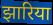
झारिया